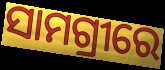
ସାମଗ୍ରୀରେ